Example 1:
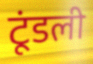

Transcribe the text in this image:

टूंडली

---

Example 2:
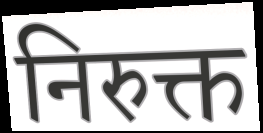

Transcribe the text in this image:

निरुक्त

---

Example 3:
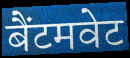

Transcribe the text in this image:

बैंटमवेट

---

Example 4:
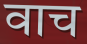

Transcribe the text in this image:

वाच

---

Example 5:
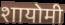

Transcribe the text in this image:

शायोमी